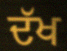
ਦੱਖ